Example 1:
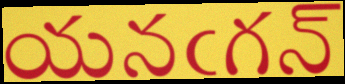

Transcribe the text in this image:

యనఁగన్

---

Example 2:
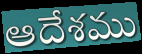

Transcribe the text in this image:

ఆదేశము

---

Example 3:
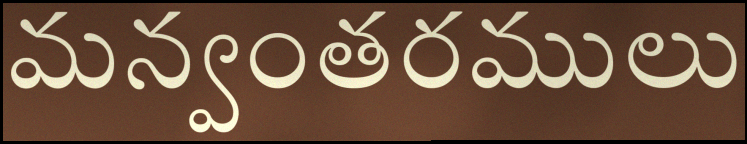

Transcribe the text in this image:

మన్వంతరములు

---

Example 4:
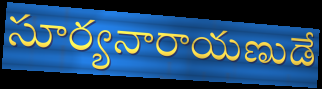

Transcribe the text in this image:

సూర్యనారాయణుడే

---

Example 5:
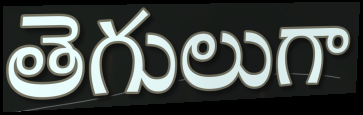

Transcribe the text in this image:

తెగులుగా